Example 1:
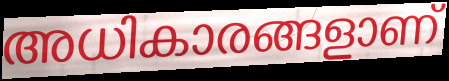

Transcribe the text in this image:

അധികാരങ്ങളാണ്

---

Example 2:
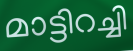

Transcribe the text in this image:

മാട്ടിറച്ചി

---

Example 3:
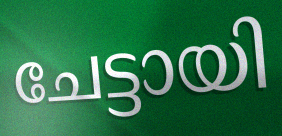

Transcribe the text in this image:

ചേട്ടായി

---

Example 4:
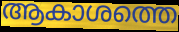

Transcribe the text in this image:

ആകാശത്തെ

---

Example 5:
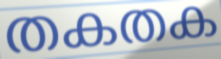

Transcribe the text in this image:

തകതക